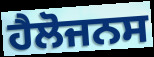
ਹੈਲੋਜਨਸ